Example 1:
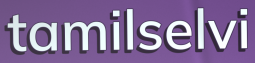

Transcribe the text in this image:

tamilselvi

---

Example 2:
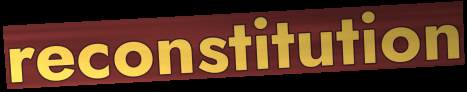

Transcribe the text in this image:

reconstitution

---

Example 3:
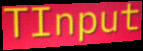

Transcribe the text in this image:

TInput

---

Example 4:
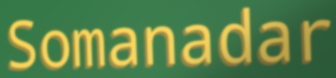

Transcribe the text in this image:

Somanadar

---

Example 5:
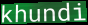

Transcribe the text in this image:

khundi